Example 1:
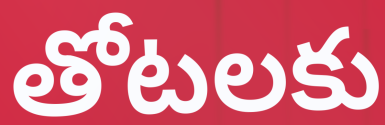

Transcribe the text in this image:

తోటలకు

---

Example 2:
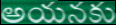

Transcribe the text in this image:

అయనకు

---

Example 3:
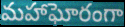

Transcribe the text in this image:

మహాఘోరంగా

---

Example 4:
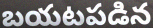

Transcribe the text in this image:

బయటపడిన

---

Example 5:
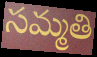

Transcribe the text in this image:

సమ్మతి